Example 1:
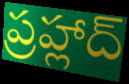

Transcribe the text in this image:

ప్రహ్లాద్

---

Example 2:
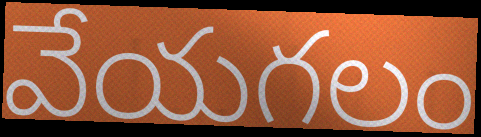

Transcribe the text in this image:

వేయగలం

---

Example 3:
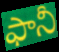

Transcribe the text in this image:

ఫానీ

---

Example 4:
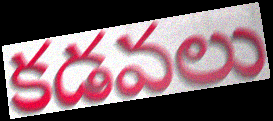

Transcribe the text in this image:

కడవలు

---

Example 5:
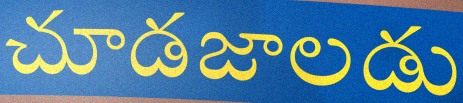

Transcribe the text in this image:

చూడజాలడు